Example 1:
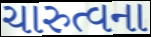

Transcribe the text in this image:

ચારુત્વના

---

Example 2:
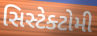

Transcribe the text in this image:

સિસ્ટેક્ટોમી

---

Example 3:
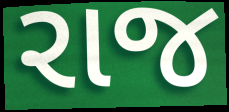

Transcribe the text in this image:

રાજ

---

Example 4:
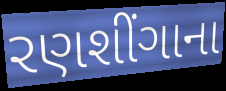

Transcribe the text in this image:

રણશીંગાના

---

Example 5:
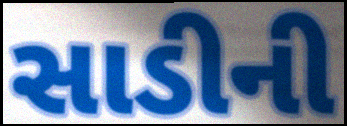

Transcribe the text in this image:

સાડીની